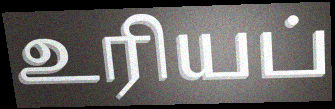
உரியப்